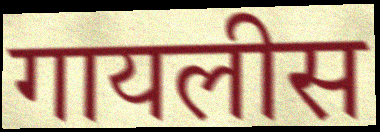
गायलीस